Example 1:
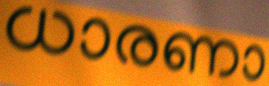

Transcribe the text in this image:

ധാരണാ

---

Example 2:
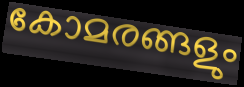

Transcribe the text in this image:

കോമരങ്ങളും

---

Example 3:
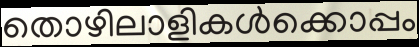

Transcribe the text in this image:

തൊഴിലാളികൾക്കൊപ്പം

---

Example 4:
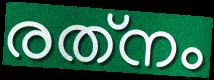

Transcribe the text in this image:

രത്‌നം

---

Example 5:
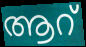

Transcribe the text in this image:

ആറ്